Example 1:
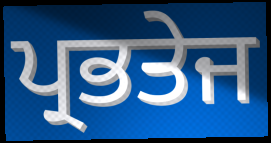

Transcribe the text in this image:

ਪ੍ਰਭਤੇਜ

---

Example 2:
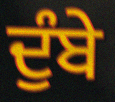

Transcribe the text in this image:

ਦੁੰਬੇ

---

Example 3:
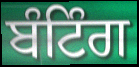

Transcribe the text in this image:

ਬੰਟਿੰਗ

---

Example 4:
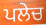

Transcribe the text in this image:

ਪਲੇਚ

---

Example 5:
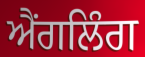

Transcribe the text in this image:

ਐਂਗਲਿੰਗ